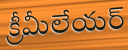
క్రీమీలేయర్